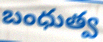
బంధుత్వ